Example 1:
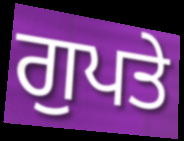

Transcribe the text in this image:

ਗੁਪਤੇ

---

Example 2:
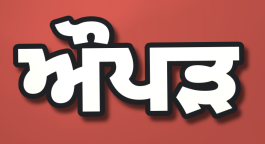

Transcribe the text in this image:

ਔਪੜ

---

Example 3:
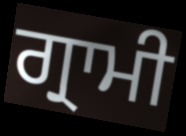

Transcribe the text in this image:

ਗ੍ਰਾਮੀ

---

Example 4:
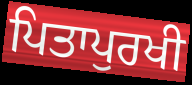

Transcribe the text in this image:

ਪਿਤਾਪੁਰਖੀ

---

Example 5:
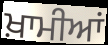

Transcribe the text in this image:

ਖ਼ਾਮੀਆਂ